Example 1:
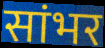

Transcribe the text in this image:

सांभर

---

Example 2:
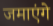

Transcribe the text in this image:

जमाएंगे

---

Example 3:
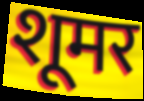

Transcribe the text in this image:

शूमर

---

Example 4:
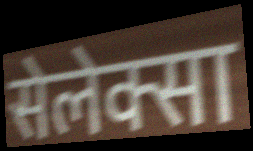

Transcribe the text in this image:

सेलेक्सा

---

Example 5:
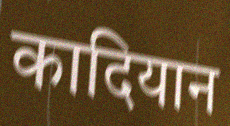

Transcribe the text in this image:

कादियान